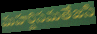
మహర్షిసమతేజసి